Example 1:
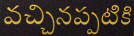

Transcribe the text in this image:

వచ్చినప్పటికి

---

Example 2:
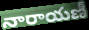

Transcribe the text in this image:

నారాయణీ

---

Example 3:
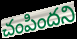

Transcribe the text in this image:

చంపిందని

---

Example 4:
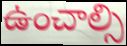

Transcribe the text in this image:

ఉంచాల్సి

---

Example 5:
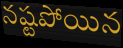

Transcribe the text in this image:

నష్టపోయిన